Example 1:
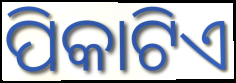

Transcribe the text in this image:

ପିକାଟିଏ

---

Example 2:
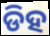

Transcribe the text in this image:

ଡିହ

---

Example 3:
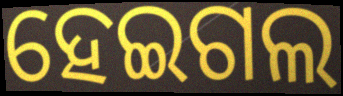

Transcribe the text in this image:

ହେଇଗଲ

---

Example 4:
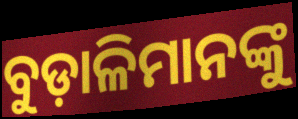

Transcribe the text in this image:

ବୁଡ଼ାଳିମାନଙ୍କୁ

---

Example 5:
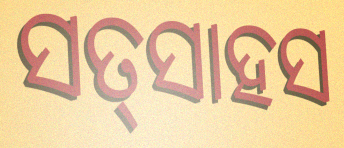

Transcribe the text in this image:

ସତ୍‌ସାହସ